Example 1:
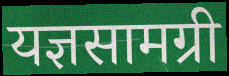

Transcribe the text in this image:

यज्ञसामग्री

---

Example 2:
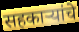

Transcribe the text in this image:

सहकार्‍यांचे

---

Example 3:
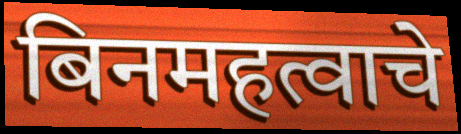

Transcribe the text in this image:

बिनमहत्वाचे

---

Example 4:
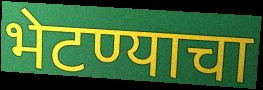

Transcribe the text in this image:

भेटण्याचा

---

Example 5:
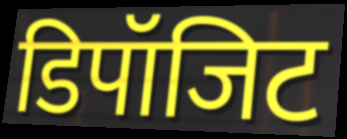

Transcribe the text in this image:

डिपॉजिट